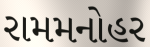
રામમનોહર